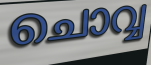
ചൊവ്വ